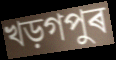
খড়গপুৰ